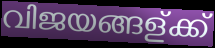
വിജയങ്ങള്ക്ക്